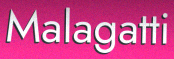
Malagatti